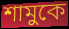
শামুকে